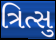
ત્રિત્સુ